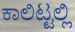
ಕಾಲಿಟ್ಟಲ್ಲಿ